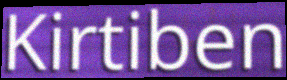
Kirtiben